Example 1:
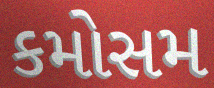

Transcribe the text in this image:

કમોસમ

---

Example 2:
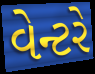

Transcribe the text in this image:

વેન્ટરે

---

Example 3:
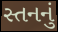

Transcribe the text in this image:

સ્તનનું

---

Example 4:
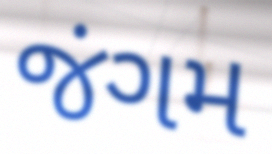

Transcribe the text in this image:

જંગમ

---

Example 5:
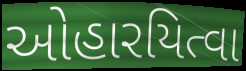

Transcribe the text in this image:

ઓહારયિત્વા